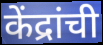
केंद्रांची